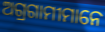
ଅଗ୍ରଗାମୀମାନେ